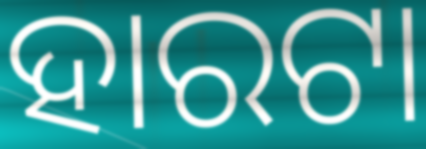
ହାରଟା